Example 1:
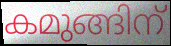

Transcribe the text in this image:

കമുങ്ങിന്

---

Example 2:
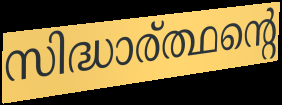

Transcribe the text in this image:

സിദ്ധാര്ത്ഥന്റെ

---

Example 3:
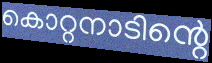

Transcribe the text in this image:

കൊറ്റനാടിന്റെ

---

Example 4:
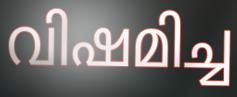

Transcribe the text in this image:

വിഷമിച്ച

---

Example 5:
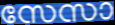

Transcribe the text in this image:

സേസാ